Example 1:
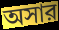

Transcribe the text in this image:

অসার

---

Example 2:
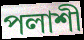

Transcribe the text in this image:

পলাশী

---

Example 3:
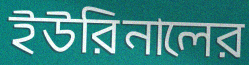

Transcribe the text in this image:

ইউরিনালের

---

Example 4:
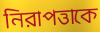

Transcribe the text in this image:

নিরাপত্তাকে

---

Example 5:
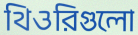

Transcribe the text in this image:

থিওরিগুলো